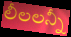
లీలలన్నీ